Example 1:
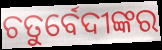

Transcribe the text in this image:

ଚତୁର୍ବେଦୀଙ୍କର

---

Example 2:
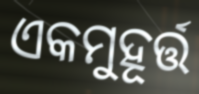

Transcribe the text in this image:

ଏକମୁହୂର୍ତ୍ତ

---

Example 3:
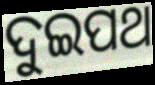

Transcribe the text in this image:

ଦୁଇପଥ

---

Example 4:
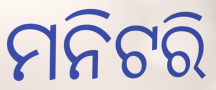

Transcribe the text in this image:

ମନିଟରି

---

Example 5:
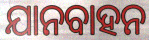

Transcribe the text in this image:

ଯାନବାହନ